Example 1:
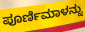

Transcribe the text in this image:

ಪೂರ್ಣಿಮಾಳನ್ನು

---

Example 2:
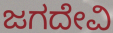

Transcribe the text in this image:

ಜಗದೇವಿ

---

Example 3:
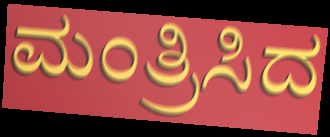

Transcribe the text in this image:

ಮಂತ್ರಿಸಿದ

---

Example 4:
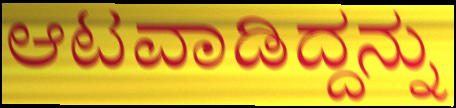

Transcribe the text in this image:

ಆಟವಾಡಿದ್ದನ್ನು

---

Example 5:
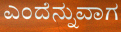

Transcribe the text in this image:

ಎಂದೆನ್ನುವಾಗ